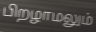
பிறழாமலும்